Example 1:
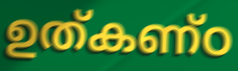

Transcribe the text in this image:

ഉത്കണ്ഠ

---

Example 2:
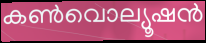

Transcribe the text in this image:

കൺവൊല്യൂഷൻ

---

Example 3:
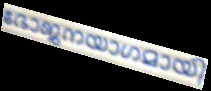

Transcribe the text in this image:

ഭോജനയാഗമായി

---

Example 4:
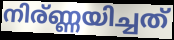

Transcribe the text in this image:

നിര്ണ്ണയിച്ചത്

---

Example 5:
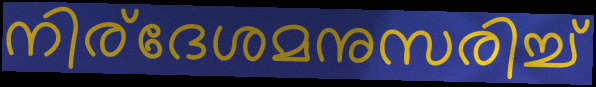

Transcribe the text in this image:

നിര്ദേശമനുസരിച്ച്